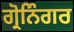
ਗ੍ਰੋਨਿੰਗਰ